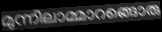
മുന്നിലാമ്മാറങ്ങൊരു